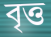
বৃত্ত